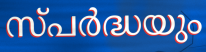
സ്പർദ്ധയും